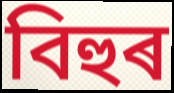
বিহুৰ